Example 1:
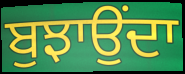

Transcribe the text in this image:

ਬੁਝਾਉਂਦਾ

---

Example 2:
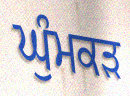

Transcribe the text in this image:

ਘੁੰਮਕੜ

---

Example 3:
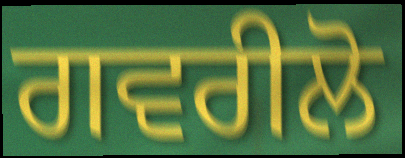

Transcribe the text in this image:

ਗਵਰੀਲੋ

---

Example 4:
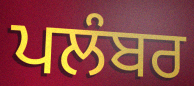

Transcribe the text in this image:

ਪਲੰਬਰ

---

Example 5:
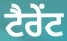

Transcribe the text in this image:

ਟੈਰੇਂਟ